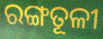
ରଙ୍ଗତୂଳୀ